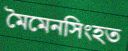
মৈমেনসিংহত